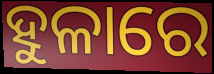
ହୁଳାରେ